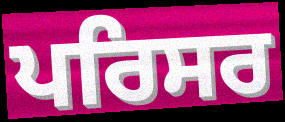
ਪਰਿਸਰ